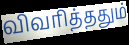
விவரித்ததும்